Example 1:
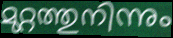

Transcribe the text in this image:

മുറ്റത്തുനിന്നും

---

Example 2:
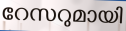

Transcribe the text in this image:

റേസറുമായി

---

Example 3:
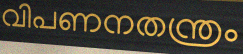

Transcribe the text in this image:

വിപണനതന്ത്രം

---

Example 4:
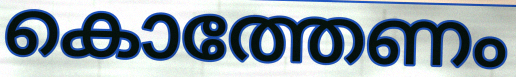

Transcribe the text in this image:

കൊത്തേണം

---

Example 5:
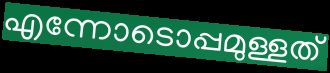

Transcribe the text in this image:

എന്നോടൊപ്പമുള്ളത്